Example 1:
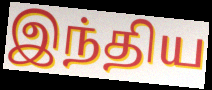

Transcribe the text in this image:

இந்திய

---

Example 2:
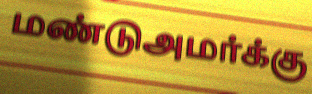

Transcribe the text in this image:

மண்டுஅமர்க்கு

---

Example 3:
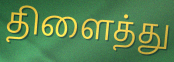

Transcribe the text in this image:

திளைத்து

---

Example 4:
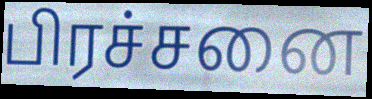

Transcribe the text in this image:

பிரச்சனை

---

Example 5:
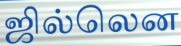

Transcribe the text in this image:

ஜில்லென